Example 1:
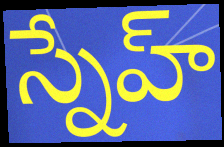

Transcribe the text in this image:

స్నేహ్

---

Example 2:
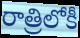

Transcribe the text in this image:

రాత్రిలోకీ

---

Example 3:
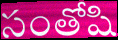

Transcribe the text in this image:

సంతోషి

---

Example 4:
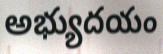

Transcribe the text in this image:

అభ్యుదయం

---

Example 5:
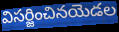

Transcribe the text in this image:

విసర్జించినయెడల